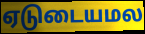
ஏடுடையமல